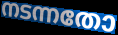
നടന്നതോ